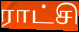
ராட்சி